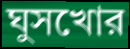
ঘুসখোর